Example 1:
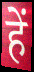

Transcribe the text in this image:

हें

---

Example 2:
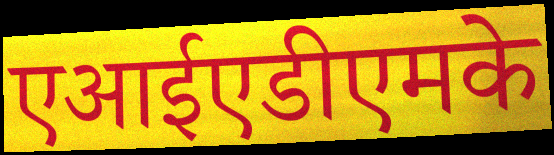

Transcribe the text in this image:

एआईएडीएमके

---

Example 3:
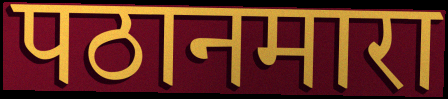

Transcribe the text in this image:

पठानमारा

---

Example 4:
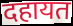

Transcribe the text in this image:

दहायत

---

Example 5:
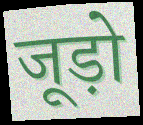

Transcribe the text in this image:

जूड़ो